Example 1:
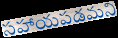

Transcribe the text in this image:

సహాయపడమని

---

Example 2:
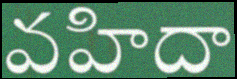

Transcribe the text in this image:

వహిదా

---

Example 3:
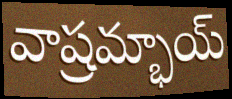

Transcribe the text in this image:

వాష్రమ్భాయ్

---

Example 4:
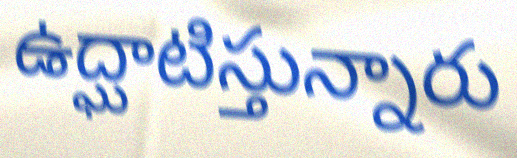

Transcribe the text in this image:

ఉద్ఘాటిస్తున్నారు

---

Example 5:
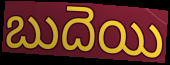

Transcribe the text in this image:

బుదెయి